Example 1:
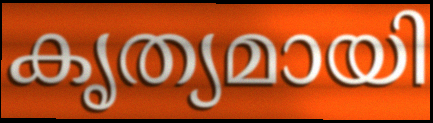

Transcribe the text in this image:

കൃത്യമായി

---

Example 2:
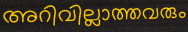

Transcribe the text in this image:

അറിവില്ലാത്തവരും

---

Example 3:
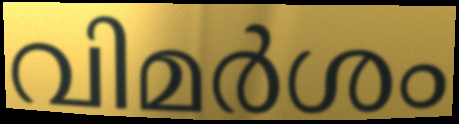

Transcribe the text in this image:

വിമർശം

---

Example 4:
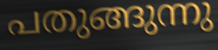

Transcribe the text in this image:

പതുങ്ങുന്നു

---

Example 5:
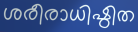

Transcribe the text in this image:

ശരീരാധിഷ്ഠിത